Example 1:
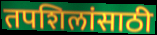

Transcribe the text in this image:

तपशिलांसाठी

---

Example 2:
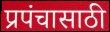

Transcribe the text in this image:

प्रपंचासाठी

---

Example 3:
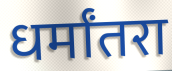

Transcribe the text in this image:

धर्मांतरा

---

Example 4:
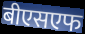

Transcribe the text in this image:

बीएसएफ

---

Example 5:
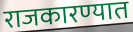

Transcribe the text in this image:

राजकारण्यात